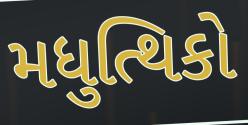
મધુત્થિકો